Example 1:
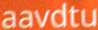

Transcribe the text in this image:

aavdtu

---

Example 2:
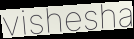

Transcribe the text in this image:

vishesha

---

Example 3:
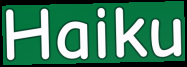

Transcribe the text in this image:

Haiku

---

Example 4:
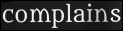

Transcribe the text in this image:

complains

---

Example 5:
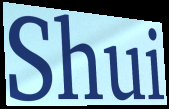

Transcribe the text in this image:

Shui